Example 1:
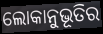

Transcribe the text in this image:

ଲୋକାନୁଭୂତିର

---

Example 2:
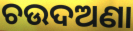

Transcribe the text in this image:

ଚଉଦଅଣା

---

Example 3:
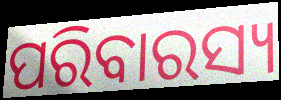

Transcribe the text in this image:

ପରିବାରସ୍ୟ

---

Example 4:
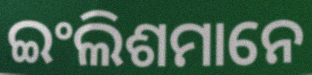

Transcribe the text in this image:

ଇଂଲିଶମାନେ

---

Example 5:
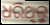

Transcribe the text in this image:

ଧରିଥିଲୁ